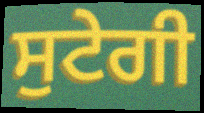
ਸੁਟੇਗੀ